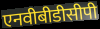
एनवीबीडीसीपी